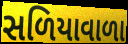
સળિયાવાળા